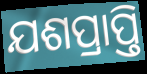
ଯଶପ୍ରାପ୍ତି